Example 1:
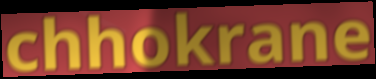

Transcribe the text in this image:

chhokrane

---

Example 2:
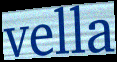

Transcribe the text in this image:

vella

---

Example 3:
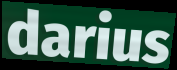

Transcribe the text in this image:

darius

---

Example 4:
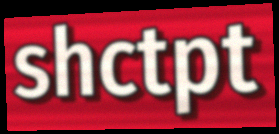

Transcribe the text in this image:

shctpt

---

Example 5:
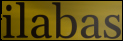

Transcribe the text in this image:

ilabas